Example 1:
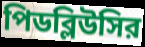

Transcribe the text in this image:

পিডব্লিউসির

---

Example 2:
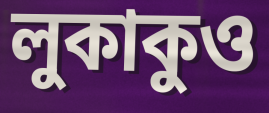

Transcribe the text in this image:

লুকাকুও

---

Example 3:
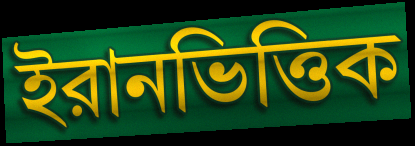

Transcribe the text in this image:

ইরানভিত্তিক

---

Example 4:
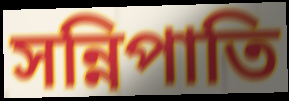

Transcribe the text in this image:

সন্নিপাতি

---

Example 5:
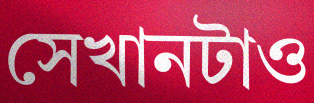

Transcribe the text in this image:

সেখানটাও